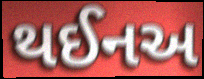
થઈનઅ